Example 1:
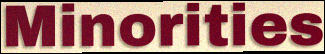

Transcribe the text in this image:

Minorities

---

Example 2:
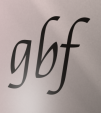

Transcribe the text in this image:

gbf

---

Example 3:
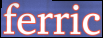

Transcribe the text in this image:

ferric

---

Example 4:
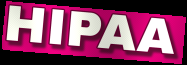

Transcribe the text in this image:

HIPAA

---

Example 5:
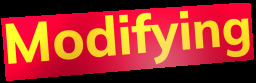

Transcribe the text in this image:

Modifying